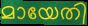
മായേതി